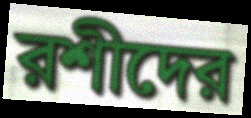
রশীদের